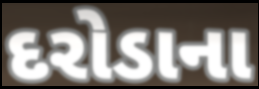
દરોડાના